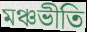
মঞ্চভীতি